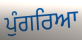
ਪੁੰਗਰਿਆ